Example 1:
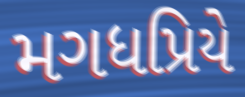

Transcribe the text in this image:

મગધપ્રિયે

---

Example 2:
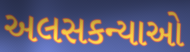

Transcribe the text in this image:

અલસકન્યાઓ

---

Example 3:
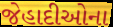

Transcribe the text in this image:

જેહાદીઓના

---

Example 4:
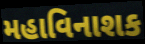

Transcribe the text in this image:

મહાવિનાશક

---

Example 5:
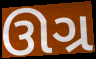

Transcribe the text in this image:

ઊગ્ર